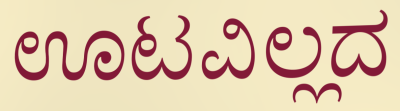
ಊಟವಿಲ್ಲದ